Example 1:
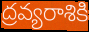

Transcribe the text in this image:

ద్రవ్యరాశికి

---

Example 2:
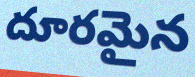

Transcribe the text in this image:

దూరమైన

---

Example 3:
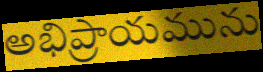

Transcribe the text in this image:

అభిప్రాయమును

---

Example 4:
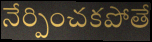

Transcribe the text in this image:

నేర్పించకపోతే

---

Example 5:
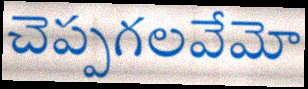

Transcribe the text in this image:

చెప్పగలవేమో